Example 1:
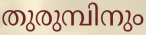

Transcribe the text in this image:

തുരുമ്പിനും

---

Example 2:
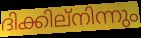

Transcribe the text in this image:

ദിക്കില്നിന്നും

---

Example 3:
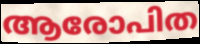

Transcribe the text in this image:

ആരോപിത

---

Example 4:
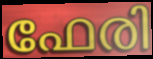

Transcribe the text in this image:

ഫേരി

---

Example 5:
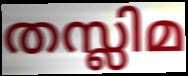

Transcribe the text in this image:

തസ്ലിമ